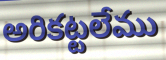
అరికట్టలేము